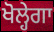
ਖੋਲ੍ਹੇਗਾ